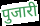
पुजारी